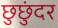
छुछुंदर